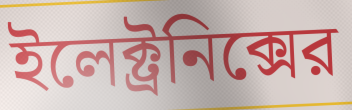
ইলেক্ট্রনিক্সের